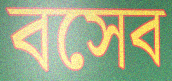
বসেব